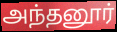
அந்தனூர்